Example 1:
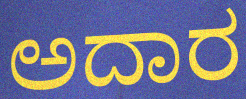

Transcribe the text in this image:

ಅದಾರ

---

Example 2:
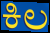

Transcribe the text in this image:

ಕಿಲ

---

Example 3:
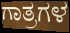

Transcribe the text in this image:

ಗಾತ್ರಗಳ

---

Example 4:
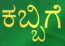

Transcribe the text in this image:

ಕಬ್ಬಿಗೆ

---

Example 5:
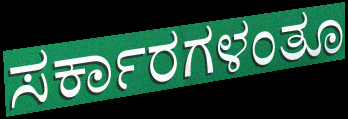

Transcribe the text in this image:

ಸರ್ಕಾರಗಳಂತೂ